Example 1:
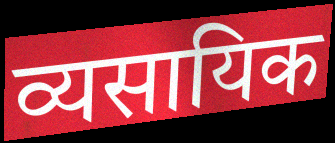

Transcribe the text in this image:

व्यसायिक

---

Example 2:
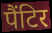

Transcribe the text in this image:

पैंटिर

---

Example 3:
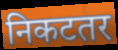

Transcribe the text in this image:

निकटतर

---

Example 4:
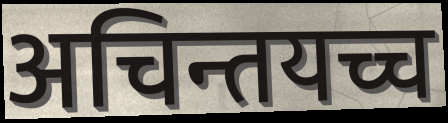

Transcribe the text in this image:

अचिन्तयच्च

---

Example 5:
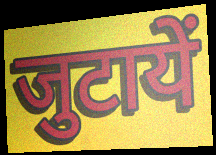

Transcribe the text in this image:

जुटायें